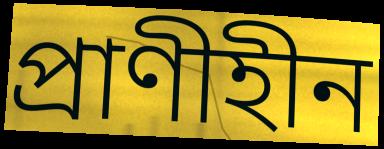
প্রাণীহীন